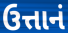
ઉત્તાનં